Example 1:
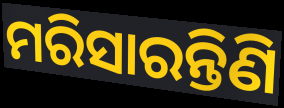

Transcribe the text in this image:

ମରିସାରନ୍ତିଣି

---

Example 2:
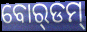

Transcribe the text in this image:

ବୋର୍‌ଡମ୍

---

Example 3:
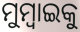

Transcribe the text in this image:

ମୁମ୍ୱାଇକୁ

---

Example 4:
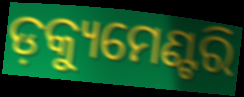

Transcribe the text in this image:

ଡ଼କ୍ୟୁମେଣ୍ଟରି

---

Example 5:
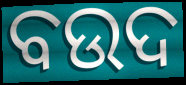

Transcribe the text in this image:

ବଉଦ